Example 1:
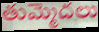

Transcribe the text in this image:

తుమ్మెదలు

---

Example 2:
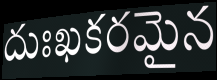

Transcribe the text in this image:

దుఃఖకరమైన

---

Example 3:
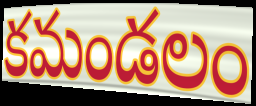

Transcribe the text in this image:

కమండలం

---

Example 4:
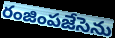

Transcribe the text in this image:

రంజింపజేసెను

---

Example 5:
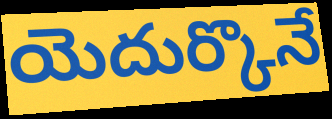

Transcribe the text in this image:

యెదుర్కొనే